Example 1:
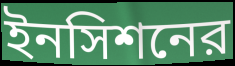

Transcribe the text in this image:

ইনসিশনের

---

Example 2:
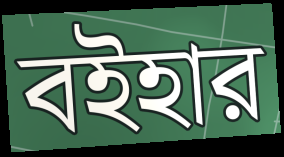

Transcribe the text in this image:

বইহার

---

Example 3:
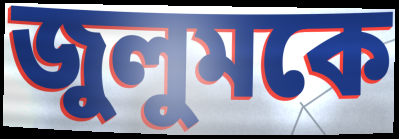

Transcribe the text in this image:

জুলুমকে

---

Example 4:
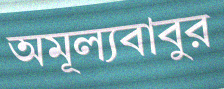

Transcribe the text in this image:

অমূল্যবাবুর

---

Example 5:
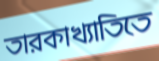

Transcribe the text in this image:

তারকাখ্যাতিতে